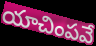
యాచింపవే